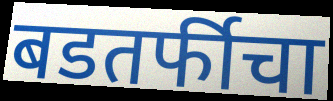
बडतर्फीचा